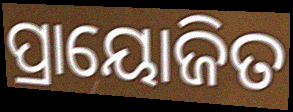
ପ୍ରାୟୋଜିତ